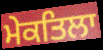
ਮੇਕਤਿਲਾ